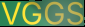
VGGS